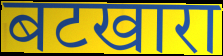
बटखारा